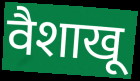
वैशाखू